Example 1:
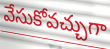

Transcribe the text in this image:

వేసుకోవచ్చుగా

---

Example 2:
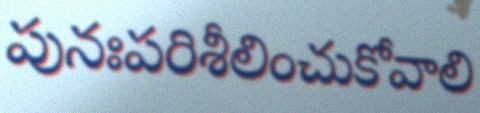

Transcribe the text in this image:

పునఃపరిశీలించుకోవాలి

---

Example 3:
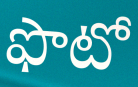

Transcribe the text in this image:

ఫొటో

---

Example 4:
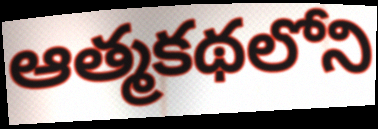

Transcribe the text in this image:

ఆత్మకథలోని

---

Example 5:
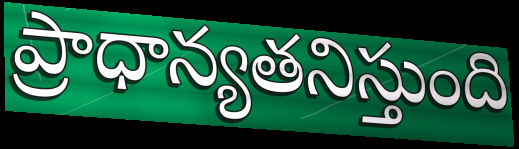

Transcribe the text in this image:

ప్రాధాన్యతనిస్తుంది